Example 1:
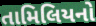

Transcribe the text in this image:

તામિલિયનો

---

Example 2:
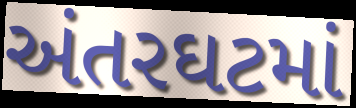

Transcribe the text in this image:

અંતરઘટમાં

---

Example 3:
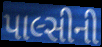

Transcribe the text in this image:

પાલ્સીની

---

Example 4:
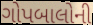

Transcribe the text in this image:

ગોપબાલોની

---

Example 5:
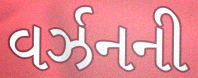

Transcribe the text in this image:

વર્ઝનની